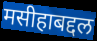
मसीहाबद्दल